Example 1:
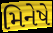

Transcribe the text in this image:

મિનેષે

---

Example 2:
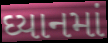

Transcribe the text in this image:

ઘ્યાનમાં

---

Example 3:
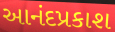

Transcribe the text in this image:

આનંદપ્રકાશ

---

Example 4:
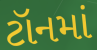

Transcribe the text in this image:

ટૉનમાં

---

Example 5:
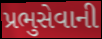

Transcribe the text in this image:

પ્રભુસેવાની